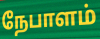
நேபாளம்